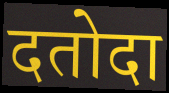
दतोदा